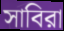
সাবিরা